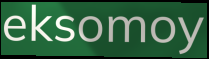
eksomoy